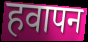
हवापन